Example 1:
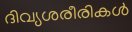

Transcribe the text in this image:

ദിവ്യശരീരികൾ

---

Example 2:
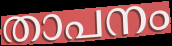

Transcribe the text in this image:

താപനം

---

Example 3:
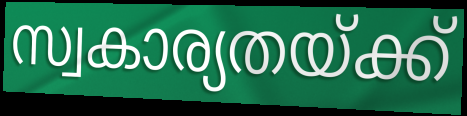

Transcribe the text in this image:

സ്വകാര്യതയ്ക്ക്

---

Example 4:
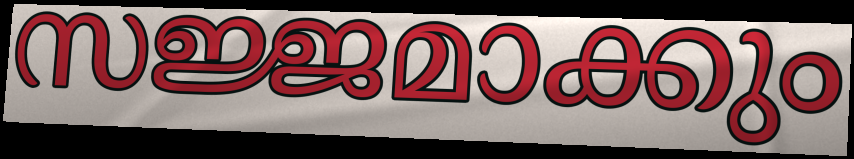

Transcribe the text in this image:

സജ്ജമാക്കും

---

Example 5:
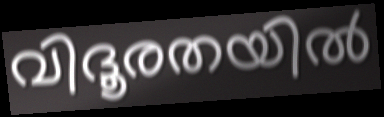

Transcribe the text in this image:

വിദൂരതയിൽ